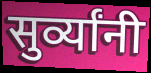
सुर्व्यांनी